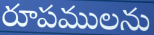
రూపములను